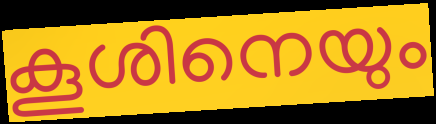
കൂശിനെയും